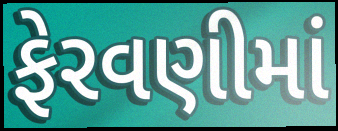
ફેરવણીમાં